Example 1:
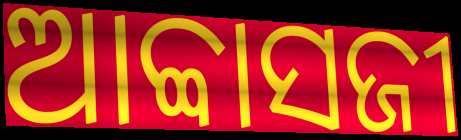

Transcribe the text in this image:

ଆବ୍ବାସଜୀ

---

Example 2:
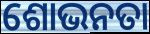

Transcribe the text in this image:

ଶୋଭନତା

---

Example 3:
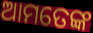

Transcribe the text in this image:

ଆମତେଙ୍କ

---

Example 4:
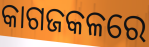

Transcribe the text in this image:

କାଗଜକଳରେ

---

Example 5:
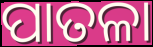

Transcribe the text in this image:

ପାତଳା